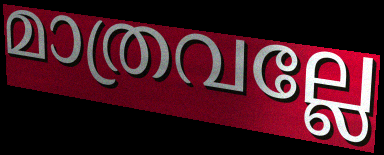
മാത്രവല്ലേ